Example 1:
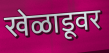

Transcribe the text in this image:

खेळाडूवर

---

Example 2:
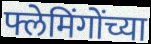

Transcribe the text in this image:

फ्लेमिंगोंच्या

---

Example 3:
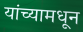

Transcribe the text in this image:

यांच्यामधून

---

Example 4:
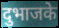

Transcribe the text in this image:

दुभाजके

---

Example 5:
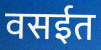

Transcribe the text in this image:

वसईत